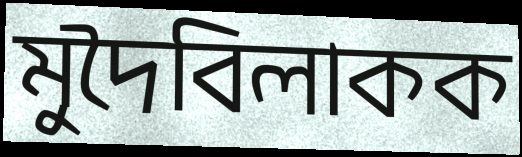
মুদৈবিলাকক